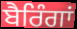
ਬੈਰਿੰਗਾਂ